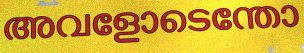
അവളോടെന്തോ